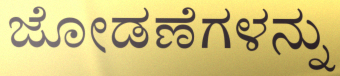
ಜೋಡಣೆಗಳನ್ನು